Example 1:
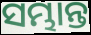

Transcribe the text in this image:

ସମ୍ଭାନ୍ତ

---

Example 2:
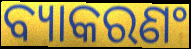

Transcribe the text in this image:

ବ୍ୟାକରଣଂ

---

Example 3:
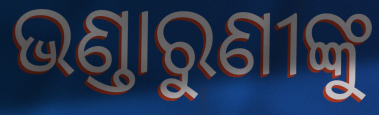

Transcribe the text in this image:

ଭଣ୍ଡାରୁଣୀଙ୍କୁ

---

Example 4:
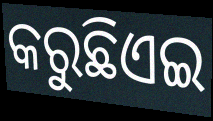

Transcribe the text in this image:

କରୁଛିଏଇ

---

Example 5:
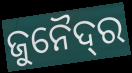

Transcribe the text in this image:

ଜୁନୈଦ୍‌ର